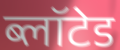
ब्लॉटेड